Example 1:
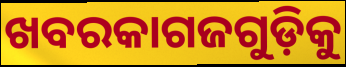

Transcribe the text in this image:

ଖବରକାଗଜଗୁଡ଼ିକୁ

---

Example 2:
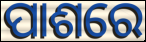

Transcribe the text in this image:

ପାଶରେ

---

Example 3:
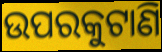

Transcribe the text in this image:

ଉପରକୁଟାଣି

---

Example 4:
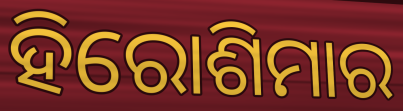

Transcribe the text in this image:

ହିରୋଶିମାର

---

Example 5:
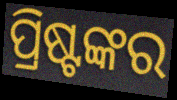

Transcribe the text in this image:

ପ୍ରିଷ୍ଟଙ୍କର